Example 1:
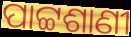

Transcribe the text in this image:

ପାଟ୍ଟଶାଣୀ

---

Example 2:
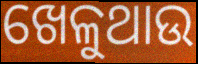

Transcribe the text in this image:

ଖେଳୁଥାଉ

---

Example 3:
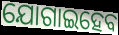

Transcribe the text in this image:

ଯୋଗାଇହେବ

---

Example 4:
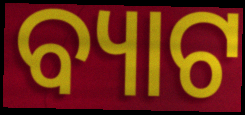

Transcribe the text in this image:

ବ୍ୟାଟ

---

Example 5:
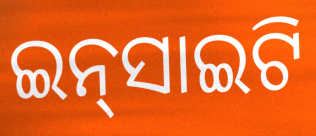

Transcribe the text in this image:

ଇନ୍‌ସାଇଟି